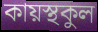
কায়স্থকুল